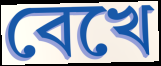
বেখে